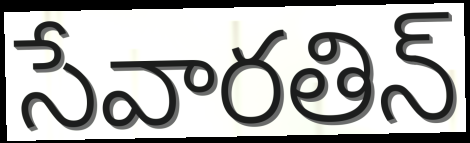
సేవారతిన్